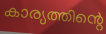
കാര്യത്തിന്റെ